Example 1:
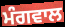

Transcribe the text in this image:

ਮੰਗਵਾਲ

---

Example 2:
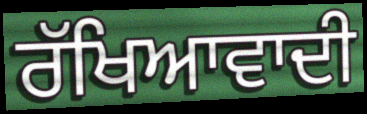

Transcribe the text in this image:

ਰੱਖਿਆਵਾਦੀ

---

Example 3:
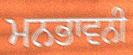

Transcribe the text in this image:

ਮਨਭਾਵਨੀ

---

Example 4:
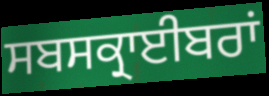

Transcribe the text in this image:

ਸਬਸਕ੍ਰਾਈਬਰਾਂ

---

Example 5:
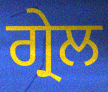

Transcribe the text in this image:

ਗ੍ਰੇਲ